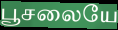
பூசலையே